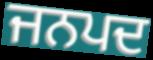
ਜਨਪਦ